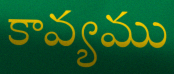
కావ్యము